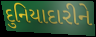
દુનિયાદારીને